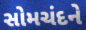
સોમચંદને